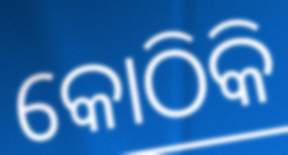
କୋଠିକି